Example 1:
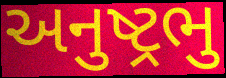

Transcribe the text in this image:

અનુષ્ટ્રભુ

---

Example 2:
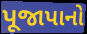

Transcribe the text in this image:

પૂજાપાનો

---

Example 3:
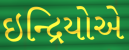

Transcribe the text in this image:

ઇન્દ્રિયોએ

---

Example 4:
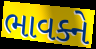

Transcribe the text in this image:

ભાવક્ને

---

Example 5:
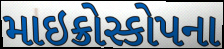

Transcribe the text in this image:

માઇક્રોસ્કોપના